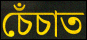
চেঁচাত